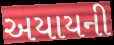
અયાયની